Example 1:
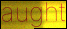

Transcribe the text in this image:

aught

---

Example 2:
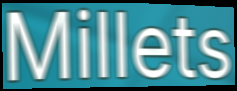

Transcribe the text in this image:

Millets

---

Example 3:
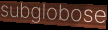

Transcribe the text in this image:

subglobose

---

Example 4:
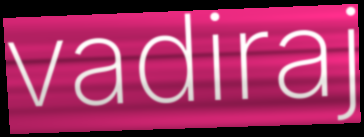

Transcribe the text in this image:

vadiraj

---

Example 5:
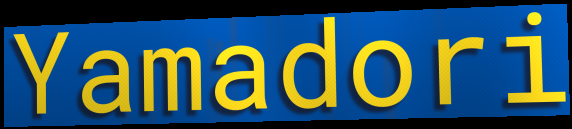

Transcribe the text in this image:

Yamadori